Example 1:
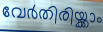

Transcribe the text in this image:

വേർതിരിയ്ക്കാം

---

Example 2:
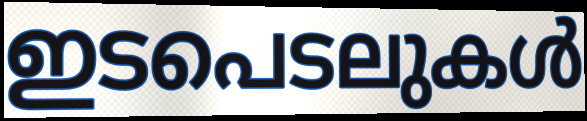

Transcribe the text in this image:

ഇടപെടലുകൾ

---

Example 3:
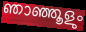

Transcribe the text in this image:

ഞാഞ്ഞൂളും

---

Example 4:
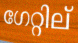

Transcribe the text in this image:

ഗേറ്റില്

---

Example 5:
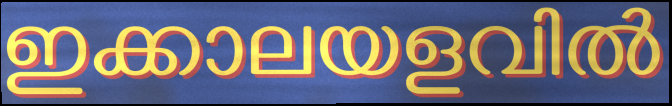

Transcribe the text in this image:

ഇക്കാലയളവിൽ